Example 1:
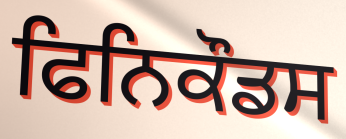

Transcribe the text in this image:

ਫਿਨਿਕੌਡਸ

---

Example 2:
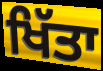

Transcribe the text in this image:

ਖਿੱਤਾ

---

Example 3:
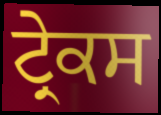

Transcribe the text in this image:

ਟ੍ਰੇਕਸ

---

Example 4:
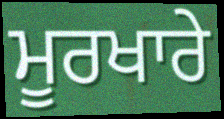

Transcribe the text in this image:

ਮੂਰਖਾਰੇ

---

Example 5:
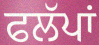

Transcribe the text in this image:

ਫਲੱਪਾਂ